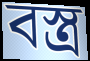
বস্ত্র